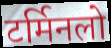
टर्मिनलो